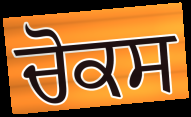
ਚੋਕਸ